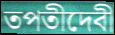
তপতীদেবী